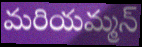
మరియమ్మన్